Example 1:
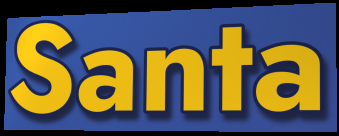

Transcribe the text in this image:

Santa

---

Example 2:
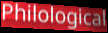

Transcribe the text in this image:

Philological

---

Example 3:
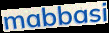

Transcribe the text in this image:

mabbasi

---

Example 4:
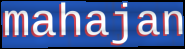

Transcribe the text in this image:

mahajan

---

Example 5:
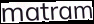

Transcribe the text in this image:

matram